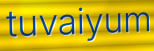
tuvaiyum